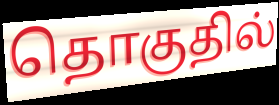
தொகுதில்